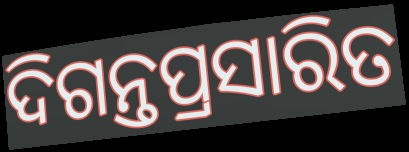
ଦିଗନ୍ତପ୍ରସାରିତ